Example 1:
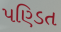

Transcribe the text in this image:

પણ્ડિત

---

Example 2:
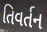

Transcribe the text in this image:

તિવર્તન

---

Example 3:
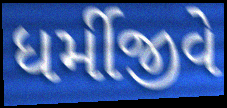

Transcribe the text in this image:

ધર્મીજીવે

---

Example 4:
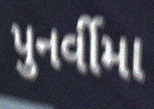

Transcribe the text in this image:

પુનર્વીમા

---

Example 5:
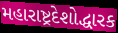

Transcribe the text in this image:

મહારાષ્ટ્રદેશોદ્ધારક